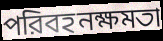
পরিবহনক্ষমতা